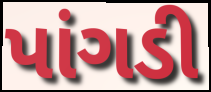
પાંગડી